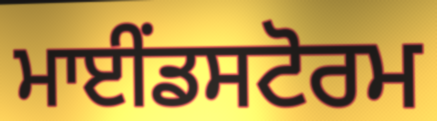
ਮਾਈਂਡਸਟੋਰਮ